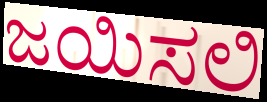
ಜಯಿಸಲಿ